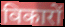
विकारों